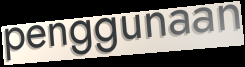
penggunaan